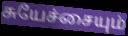
சுயேச்சையும்